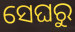
ସେଘରୁ